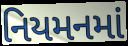
નિયમનમાં